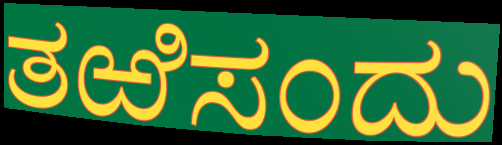
ತಱಿಸಂದು